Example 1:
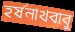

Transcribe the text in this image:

হর্ষনাথবাবু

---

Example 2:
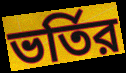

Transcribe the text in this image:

ভর্তির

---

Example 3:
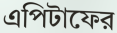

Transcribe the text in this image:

এপিটাফের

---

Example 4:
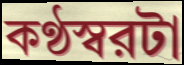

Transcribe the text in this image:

কণ্ঠস্বরটা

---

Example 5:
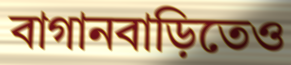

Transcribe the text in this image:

বাগানবাড়িতেও